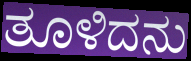
ತೂಳಿದನು